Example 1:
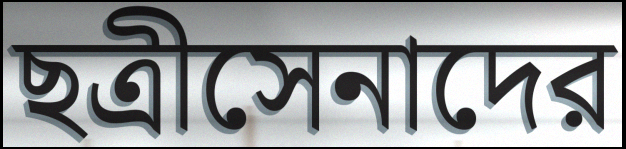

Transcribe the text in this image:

ছত্রীসেনাদের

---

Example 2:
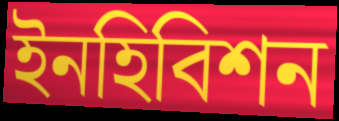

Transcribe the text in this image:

ইনহিবিশন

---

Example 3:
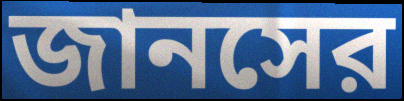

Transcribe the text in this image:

জানসের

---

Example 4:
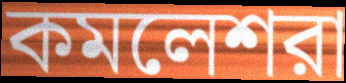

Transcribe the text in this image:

কমলেশরা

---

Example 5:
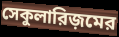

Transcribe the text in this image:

সেকুলারিজ়মের